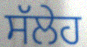
ਸੱਲੇਹ